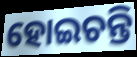
ହୋଇଚନ୍ତି